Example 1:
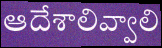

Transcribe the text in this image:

ఆదేశాలివ్వాలి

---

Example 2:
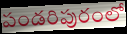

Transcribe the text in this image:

పండరిపురంలో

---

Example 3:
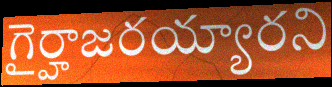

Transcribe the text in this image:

గైర్హాజరయ్యారని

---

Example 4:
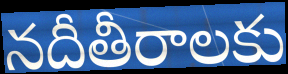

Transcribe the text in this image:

నదీతీరాలకు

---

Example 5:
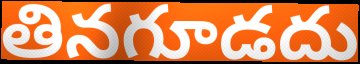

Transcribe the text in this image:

తినగూడదు